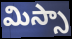
మిస్సా